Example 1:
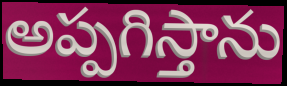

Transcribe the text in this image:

అప్పగిస్తాను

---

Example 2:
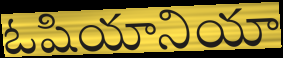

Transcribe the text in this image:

ఓషియానియా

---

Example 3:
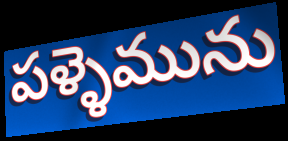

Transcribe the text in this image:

పళ్ళెమును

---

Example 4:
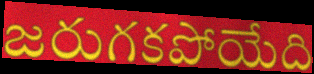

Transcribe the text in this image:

జరుగకపోయేది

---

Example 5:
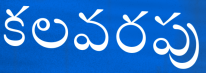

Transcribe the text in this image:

కలవరపు